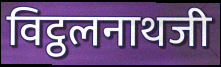
विट्ठलनाथजी